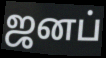
ஜனப்